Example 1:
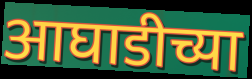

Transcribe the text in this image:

आघाडीच्या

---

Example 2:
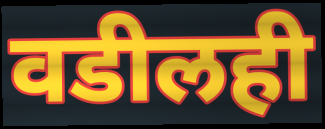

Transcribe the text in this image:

वडीलही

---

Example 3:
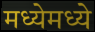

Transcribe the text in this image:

मध्येमध्ये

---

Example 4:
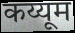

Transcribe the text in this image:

कय्यूम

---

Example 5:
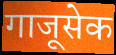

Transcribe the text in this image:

गाजूसेक